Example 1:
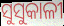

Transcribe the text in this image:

ସୁସୁକାଳୀ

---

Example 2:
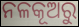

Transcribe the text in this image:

ନଳକୂଅରୁ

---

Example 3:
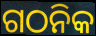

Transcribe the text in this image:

ଗଠନିକ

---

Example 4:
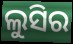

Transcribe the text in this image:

ଲୁସିର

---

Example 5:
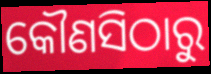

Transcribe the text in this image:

କୌଣସିଠାରୁ